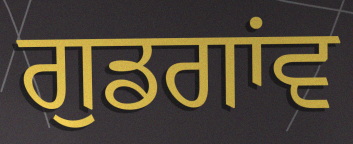
ਗੁਡਗਾਂਵ